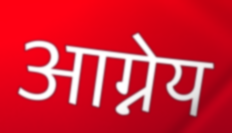
आग्नेय